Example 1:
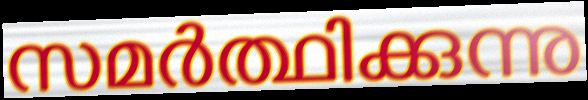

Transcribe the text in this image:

സമർത്ഥിക്കുന്നു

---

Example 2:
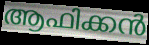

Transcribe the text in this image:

ആഫിക്കൻ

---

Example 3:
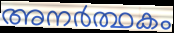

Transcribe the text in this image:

അനർത്ഥകം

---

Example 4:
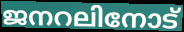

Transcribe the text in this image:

ജനറലിനോട്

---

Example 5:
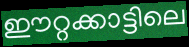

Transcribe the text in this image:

ഈറ്റക്കാട്ടിലെ